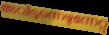
അവിടുന്നെഴുന്നേറ്റു